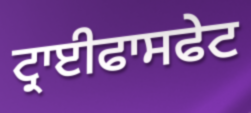
ਟ੍ਰਾਈਫਾਸਫੇਟ